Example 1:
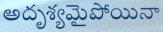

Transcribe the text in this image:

అదృశ్యమైపోయినా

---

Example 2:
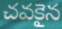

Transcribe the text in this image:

చవకైన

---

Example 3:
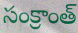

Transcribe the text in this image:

సంక్రాంత్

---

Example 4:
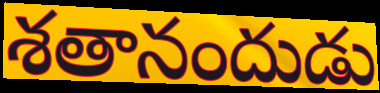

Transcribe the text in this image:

శతానందుడు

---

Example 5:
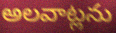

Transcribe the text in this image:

అలవాట్లను